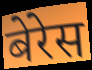
बेरेस